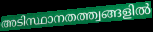
അടിസ്ഥാനതത്ത്വങ്ങളിൽ